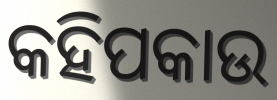
କହିପକାଉ